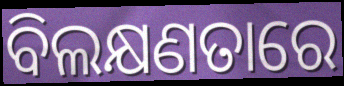
ବିଲକ୍ଷଣତାରେ